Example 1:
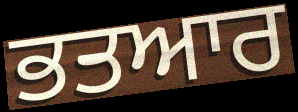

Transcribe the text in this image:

ਭਤਆਰ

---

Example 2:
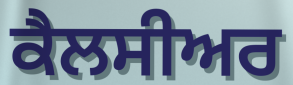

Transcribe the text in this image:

ਕੈਲਸੀਅਰ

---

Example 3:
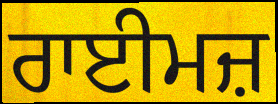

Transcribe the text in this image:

ਰਾਈਮਜ਼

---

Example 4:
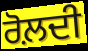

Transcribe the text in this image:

ਰੋਲ਼ਦੀ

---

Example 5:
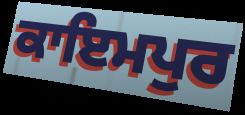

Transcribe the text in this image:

ਕਾਇਮਪੁਰ